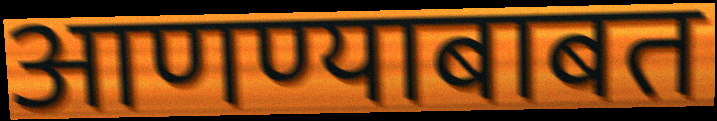
आणण्याबाबत